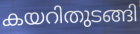
കയറിതുടങ്ങി